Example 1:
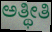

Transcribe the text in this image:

ಅತ್ಥೀತಿ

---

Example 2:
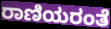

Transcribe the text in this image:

ರಾಣಿಯರಂತೆ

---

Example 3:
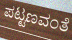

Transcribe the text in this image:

ಪಟ್ಟಣವಂತೆ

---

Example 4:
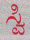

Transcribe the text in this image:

ಸ್ವಿ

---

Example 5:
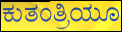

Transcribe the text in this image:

ಕುತಂತ್ರಿಯೂ